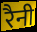
रैनी